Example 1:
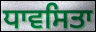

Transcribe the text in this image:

ਧਾਵਸਿਤਾ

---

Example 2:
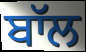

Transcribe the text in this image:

ਬਾੱਲ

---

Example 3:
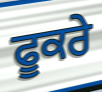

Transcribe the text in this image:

ਫੂਕਰੇ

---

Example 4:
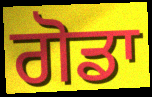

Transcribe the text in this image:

ਗੋਡਾ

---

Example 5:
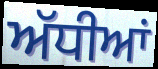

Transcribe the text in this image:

ਅੱਧੀਆਂ